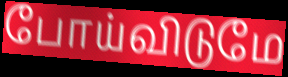
போய்விடுமே